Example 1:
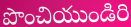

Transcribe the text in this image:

పొంచియుండిరి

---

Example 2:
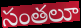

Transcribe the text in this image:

సంతలూ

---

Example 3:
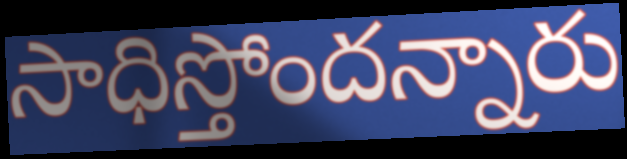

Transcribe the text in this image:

సాధిస్తోందన్నారు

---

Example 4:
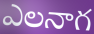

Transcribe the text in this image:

ఎలనాగ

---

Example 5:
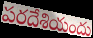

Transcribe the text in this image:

పరదేశియందు